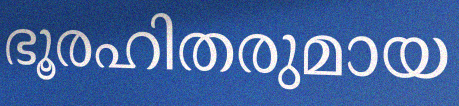
ഭൂരഹിതരുമായ